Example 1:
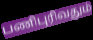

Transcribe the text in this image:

பணிபுரிவதும்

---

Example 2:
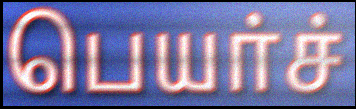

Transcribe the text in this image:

பெயர்ச்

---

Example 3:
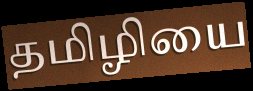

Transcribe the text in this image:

தமிழியை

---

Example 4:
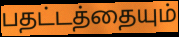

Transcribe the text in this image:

பதட்டத்தையும்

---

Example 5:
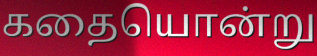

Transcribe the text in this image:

கதையொன்று